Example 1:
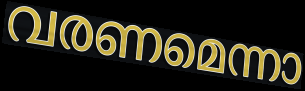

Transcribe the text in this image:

വരണമെന്നാ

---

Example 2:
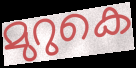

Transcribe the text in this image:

മുറുകെ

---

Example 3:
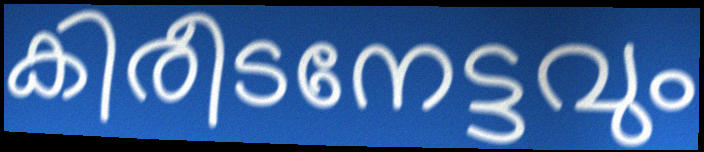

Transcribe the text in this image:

കിരീടനേട്ടവും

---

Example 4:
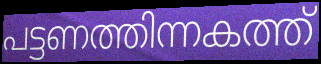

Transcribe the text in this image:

പട്ടണത്തിന്നകത്ത്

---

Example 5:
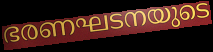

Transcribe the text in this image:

ഭരണഘടനയുടെ